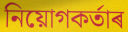
নিয়োগকৰ্তাৰ